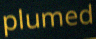
plumed